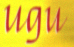
ugu